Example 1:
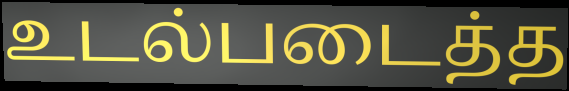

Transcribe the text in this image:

உடல்படைத்த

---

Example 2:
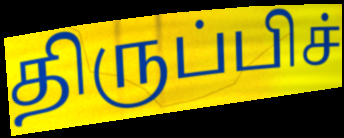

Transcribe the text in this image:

திருப்பிச்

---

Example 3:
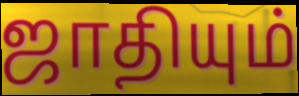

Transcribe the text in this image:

ஜாதியும்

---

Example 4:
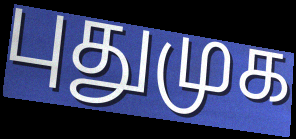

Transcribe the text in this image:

புதுமுக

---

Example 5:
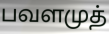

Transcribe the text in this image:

பவளமுத்